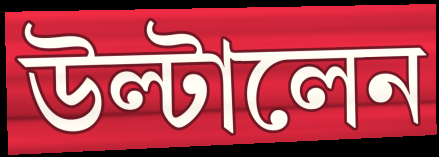
উল্টালেন